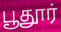
பூதூர்